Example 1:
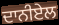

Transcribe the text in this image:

ਦਾਨੀਏਲ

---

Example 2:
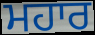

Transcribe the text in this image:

ਮਹਾਰ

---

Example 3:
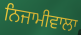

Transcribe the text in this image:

ਨਿਜਾਮੀਵਾਲਾ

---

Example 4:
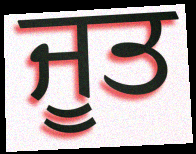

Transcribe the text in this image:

ਜੂਤ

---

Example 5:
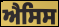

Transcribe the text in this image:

ਐਸਿਸ